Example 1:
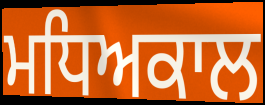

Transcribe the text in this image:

ਮਧਿਅਕਾਲ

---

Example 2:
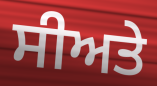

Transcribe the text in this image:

ਸੀਅਤੇ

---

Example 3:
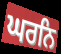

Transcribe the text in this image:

ਘਰਨਿ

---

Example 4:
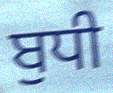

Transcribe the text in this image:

ਬੁਧੀ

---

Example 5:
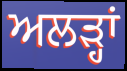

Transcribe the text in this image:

ਅਲੜ੍ਹਾਂ